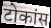
टोकांस